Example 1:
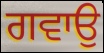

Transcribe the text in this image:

ਗਵਾਉ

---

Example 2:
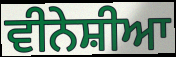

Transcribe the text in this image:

ਵੀਨੇਸ਼ੀਆ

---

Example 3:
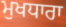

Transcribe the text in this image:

ਮੁਖਧਾਰਾ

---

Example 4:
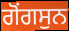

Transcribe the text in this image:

ਗੋਂਗਸੁਨ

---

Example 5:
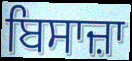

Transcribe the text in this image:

ਬਿਸਾਜ਼ਾ